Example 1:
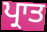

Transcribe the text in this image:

ਪ੍ਰਾਤ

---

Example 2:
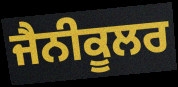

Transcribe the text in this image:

ਜੈਨੀਕੂਲਰ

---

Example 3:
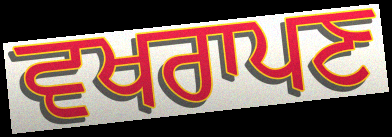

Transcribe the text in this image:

ਵਖਰਾਪਣ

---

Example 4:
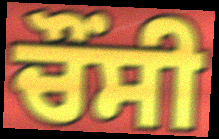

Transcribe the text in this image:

ਚੌਂਸੀ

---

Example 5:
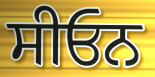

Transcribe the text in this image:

ਸੀਓਨ